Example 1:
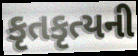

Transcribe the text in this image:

કૃતકૃત્યની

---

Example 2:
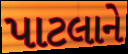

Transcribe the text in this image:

પાટલાને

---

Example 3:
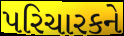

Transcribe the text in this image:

પરિચારકને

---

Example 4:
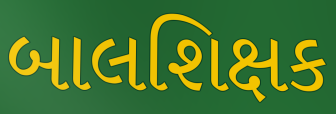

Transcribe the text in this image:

બાલશિક્ષક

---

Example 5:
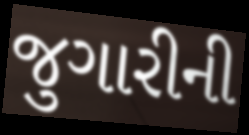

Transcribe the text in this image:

જુગારીની